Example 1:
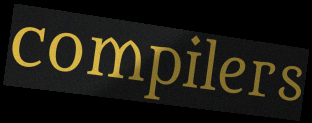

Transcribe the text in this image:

compilers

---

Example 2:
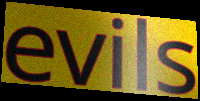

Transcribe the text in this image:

evils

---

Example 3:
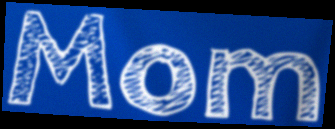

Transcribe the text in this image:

Mom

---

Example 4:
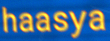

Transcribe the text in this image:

haasya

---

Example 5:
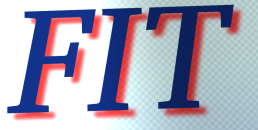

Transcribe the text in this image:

FIT